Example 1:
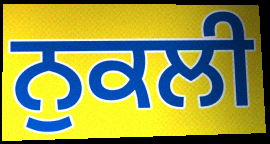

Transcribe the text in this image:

ਨੁਕਲੀ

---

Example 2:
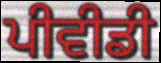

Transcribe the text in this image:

ਪੀਵੀਡੀ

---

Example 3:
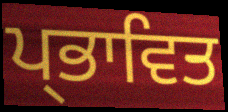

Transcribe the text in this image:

ਪ੍ਭਾਵਿਤ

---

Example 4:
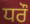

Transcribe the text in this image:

ਧਰੌ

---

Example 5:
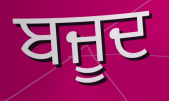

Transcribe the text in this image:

ਬਜੂਦ